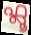
ഫ്ലൂ